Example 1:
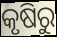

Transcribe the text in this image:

କୃଷିରୁ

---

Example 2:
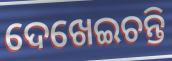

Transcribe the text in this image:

ଦେଖେଇଚନ୍ତି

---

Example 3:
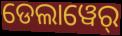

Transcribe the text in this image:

ଡେଲାୱେର୍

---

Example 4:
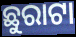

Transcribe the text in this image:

ଛୁରାଟା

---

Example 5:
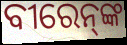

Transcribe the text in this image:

ବୀରେନ୍‍ଙ୍କ